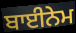
ਬਾਈਨੇਮ